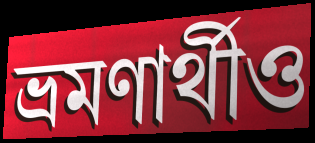
ভ্রমণার্থীও